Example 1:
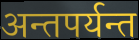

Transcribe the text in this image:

अन्तपर्यन्त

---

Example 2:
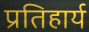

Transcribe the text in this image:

प्रतिहार्य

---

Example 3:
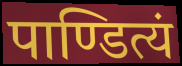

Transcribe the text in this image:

पाण्डित्यं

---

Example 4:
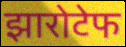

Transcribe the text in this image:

झारोटेफ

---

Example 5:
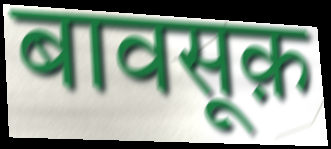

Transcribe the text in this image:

बावसूक़